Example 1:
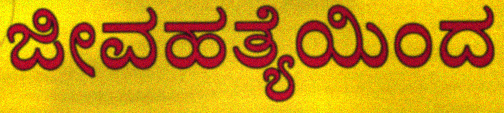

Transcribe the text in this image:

ಜೀವಹತ್ಯೆಯಿಂದ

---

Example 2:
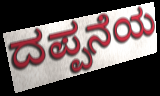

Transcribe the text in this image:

ದಪ್ಪನೆಯ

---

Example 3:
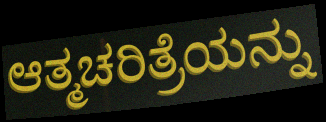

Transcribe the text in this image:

ಆತ್ಮಚರಿತ್ರೆಯನ್ನು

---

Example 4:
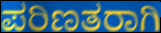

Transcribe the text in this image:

ಪರಿಣತರಾಗಿ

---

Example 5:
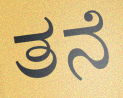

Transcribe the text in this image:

ತನೆ